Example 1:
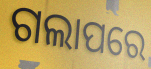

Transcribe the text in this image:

ଗଲାପରେ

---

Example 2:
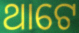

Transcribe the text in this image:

ଥାଟେ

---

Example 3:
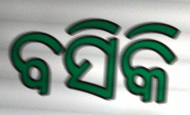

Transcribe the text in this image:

ବସିକି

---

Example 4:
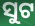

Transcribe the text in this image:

ସୁଟ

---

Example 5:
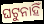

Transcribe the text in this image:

ଘଟୁନାହିଁ